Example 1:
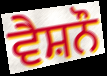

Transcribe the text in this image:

ਵੈਸ਼ਨੌ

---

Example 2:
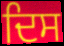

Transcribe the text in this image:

ਦਿਸ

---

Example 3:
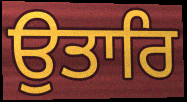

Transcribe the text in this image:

ਉਤਾਰਿ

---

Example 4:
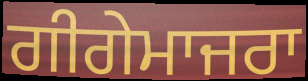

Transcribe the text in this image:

ਗੀਗੇਮਾਜਰਾ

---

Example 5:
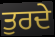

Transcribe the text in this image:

ਤੁਰਦੇ